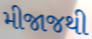
મીજાજથી